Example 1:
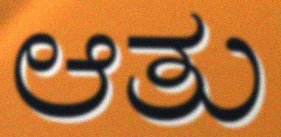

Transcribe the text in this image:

ಆತು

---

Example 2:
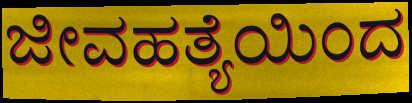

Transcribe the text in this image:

ಜೀವಹತ್ಯೆಯಿಂದ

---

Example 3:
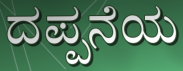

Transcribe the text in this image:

ದಪ್ಪನೆಯ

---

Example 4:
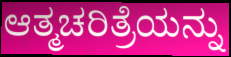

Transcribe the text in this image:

ಆತ್ಮಚರಿತ್ರೆಯನ್ನು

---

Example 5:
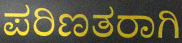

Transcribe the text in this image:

ಪರಿಣತರಾಗಿ